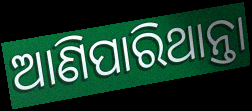
ଆଣିପାରିଥାନ୍ତା